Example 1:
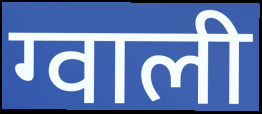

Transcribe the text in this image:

ग्वाली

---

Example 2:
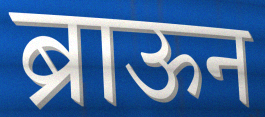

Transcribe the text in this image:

ब्राऊन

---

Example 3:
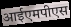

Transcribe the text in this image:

आईएमपीएस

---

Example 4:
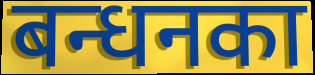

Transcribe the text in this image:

बन्धनका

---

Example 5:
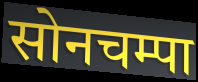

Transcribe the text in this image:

सोनचम्पा